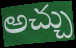
అచ్చు